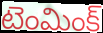
టెంమింక్